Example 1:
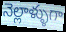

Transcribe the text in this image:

నెల్లాళ్ళుగా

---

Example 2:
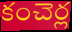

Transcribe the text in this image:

కంచెర్ల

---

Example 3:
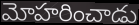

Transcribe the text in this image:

మోహరించాడు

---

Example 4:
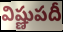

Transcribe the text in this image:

విష్ణుపదీ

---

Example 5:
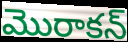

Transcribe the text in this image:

మొరాకన్